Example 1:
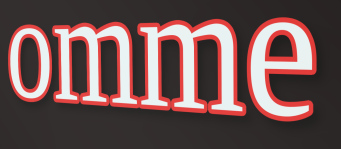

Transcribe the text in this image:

omme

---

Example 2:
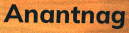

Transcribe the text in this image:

Anantnag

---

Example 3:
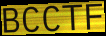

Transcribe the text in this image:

BCCTF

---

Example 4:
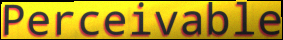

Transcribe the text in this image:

Perceivable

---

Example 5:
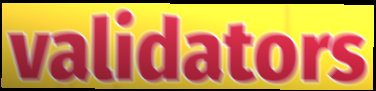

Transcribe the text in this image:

validators